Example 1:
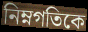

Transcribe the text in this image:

নিম্নগতিকে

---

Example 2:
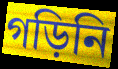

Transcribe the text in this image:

গড়িনি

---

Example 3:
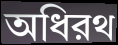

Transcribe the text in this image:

অধিরথ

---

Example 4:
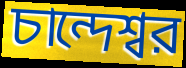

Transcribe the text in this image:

চান্দেশ্বর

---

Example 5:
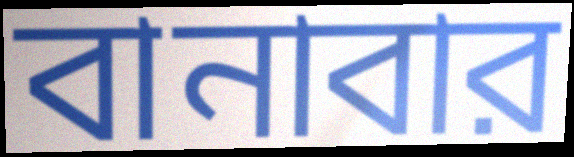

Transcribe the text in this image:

বানাবার